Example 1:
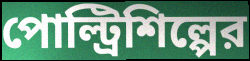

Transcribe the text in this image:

পোল্ট্রিশিল্পের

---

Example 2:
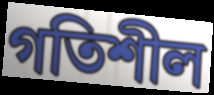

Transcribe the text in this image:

গতিশীল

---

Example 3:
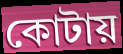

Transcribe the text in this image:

কোটায়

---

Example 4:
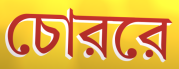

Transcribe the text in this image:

চোররে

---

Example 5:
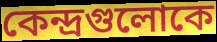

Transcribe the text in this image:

কেন্দ্রগুলোকে